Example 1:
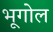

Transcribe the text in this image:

भूगोल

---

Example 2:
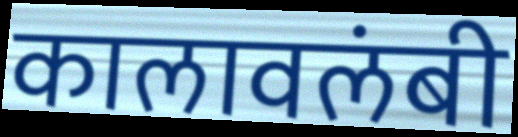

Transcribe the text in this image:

कालावलंबी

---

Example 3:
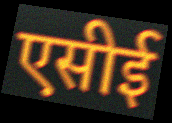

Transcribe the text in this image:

एसीई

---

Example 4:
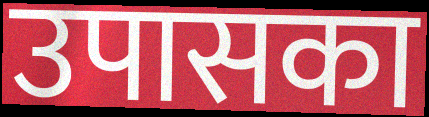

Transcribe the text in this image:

उपासका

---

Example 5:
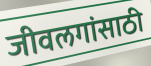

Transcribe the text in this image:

जीवलगांसाठी